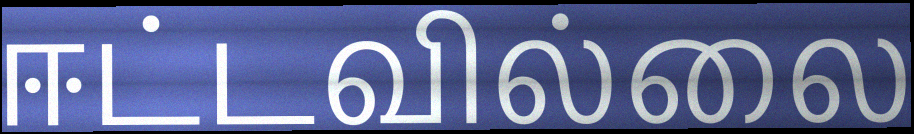
ஈட்டவில்லை